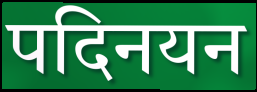
पदिनयन